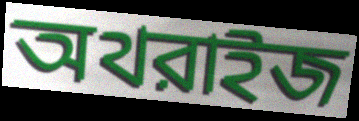
অথরাইজ